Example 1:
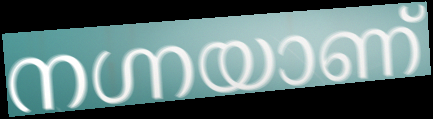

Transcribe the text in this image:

നഗ്നയാണ്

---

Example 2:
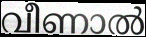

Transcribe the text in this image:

വീണാൽ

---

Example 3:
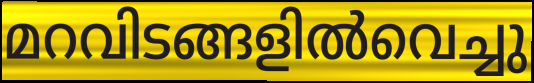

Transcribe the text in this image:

മറവിടങ്ങളിൽവെച്ചു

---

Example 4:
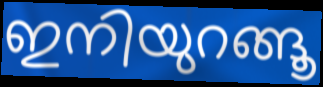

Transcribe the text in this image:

ഇനിയുറങ്ങൂ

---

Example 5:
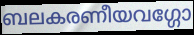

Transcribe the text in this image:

ബലകരണീയവഗ്ഗോ